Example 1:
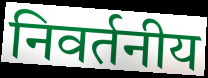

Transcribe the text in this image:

निवर्तनीय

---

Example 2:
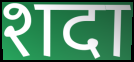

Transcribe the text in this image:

शदा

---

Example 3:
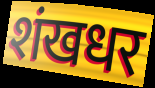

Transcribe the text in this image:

शंखधर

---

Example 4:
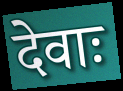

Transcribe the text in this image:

देवाः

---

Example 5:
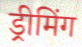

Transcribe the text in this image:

ड्रीमिंग